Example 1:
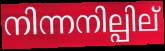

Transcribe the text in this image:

നിന്നനില്പില്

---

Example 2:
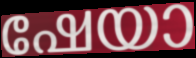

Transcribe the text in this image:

ഷേയാ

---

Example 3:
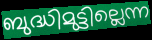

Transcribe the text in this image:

ബുദ്ധിമുട്ടില്ലെന്ന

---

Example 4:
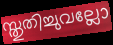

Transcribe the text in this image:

സ്തുതിച്ചുവല്ലോ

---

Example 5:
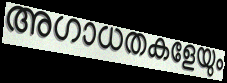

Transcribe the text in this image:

അഗാധതകളേയും